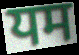
यम